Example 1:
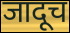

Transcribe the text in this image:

जादूच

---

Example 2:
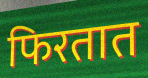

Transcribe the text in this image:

फिरतात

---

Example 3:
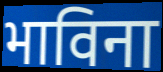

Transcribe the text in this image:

भाविना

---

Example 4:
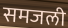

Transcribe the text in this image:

समजली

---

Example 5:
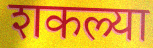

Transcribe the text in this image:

शकल्या